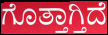
ಗೊತ್ತಾಗ್ತಿದೆ